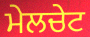
ਮੇਲਚੇਟ